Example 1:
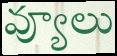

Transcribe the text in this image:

వ్యూలు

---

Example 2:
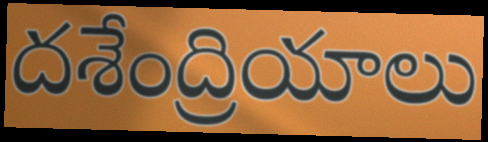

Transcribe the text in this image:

దశేంద్రియాలు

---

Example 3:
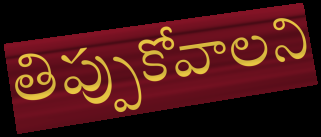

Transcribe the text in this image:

తిప్పుకోవాలని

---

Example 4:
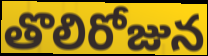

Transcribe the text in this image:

తొలిరోజున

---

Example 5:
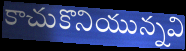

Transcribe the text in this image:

కాచుకొనియున్నవి